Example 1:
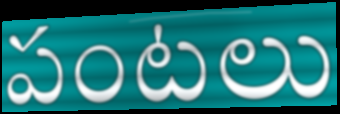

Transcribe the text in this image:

పంటలు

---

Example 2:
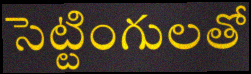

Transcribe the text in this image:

సెట్టింగులతో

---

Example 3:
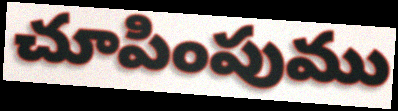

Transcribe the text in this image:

చూపింపుము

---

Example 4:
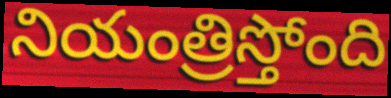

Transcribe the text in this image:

నియంత్రిస్తోంది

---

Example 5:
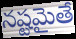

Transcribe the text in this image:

నష్టమైతే